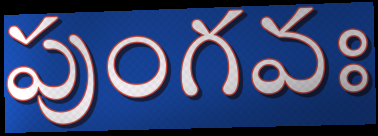
పుంగవః